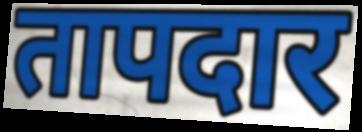
तापदार